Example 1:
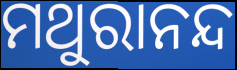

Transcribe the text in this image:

ମଥୁରାନନ୍ଦ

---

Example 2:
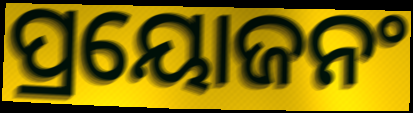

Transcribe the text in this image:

ପ୍ରୟୋଜନଂ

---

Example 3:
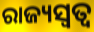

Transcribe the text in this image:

ରାଜ୍ୟସ୍ଵତ୍ଵ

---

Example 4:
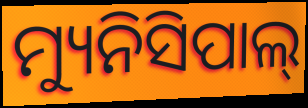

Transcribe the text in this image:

ମ୍ୟୁନିସିପାଲ୍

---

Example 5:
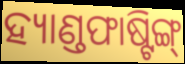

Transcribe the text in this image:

ହ୍ୟାଣ୍ଡଫାଷ୍ଟିଙ୍ଗ୍